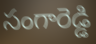
సంగారెడ్డి